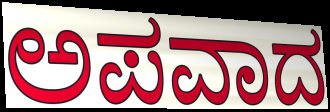
ಅಪವಾದ